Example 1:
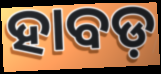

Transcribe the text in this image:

ହାବଡ଼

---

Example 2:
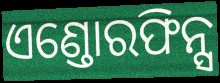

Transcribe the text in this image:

ଏଣ୍ଡୋରଫିନ୍ସ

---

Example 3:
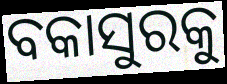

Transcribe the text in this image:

ବକାସୁରକୁ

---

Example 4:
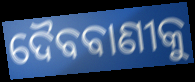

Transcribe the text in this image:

ଦୈବବାଣୀକୁ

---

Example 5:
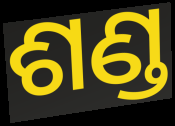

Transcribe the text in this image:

ଶଣ୍ଡ